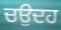
ਚਉਦਹ